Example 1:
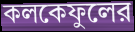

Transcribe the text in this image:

কলকেফুলের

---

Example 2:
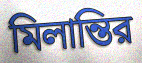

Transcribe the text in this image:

মিলান্তির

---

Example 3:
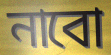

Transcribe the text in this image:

নাবো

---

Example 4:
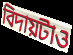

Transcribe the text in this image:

বিদায়টাও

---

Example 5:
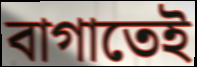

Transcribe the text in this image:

বাগাতেই